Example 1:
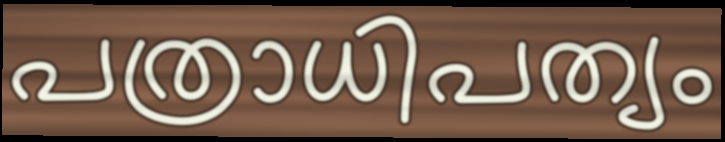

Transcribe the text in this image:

പത്രാധിപത്യം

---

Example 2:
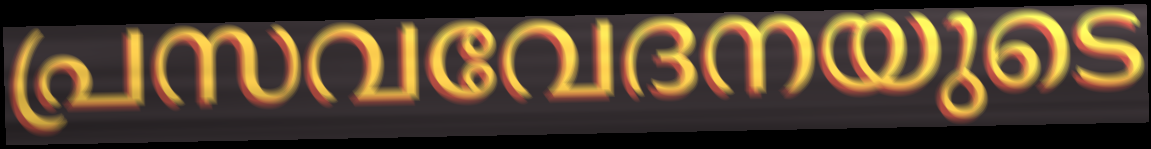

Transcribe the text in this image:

പ്രസവവേദനയുടെ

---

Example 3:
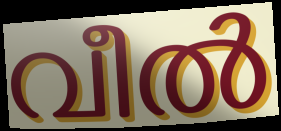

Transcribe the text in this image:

വീൽ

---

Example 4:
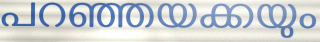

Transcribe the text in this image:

പറഞ്ഞയക്കയും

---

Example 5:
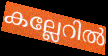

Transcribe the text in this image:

കല്ലേറിൽ